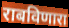
राबविणारा